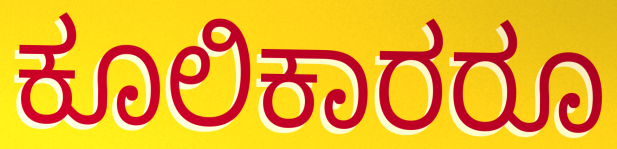
ಕೂಲಿಕಾರರೂ